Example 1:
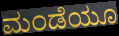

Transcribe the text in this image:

ಮಂಡೆಯೂ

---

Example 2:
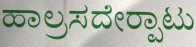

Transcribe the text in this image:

ಹಾಲ್ರಸದೇರ‍್ಪಾಟು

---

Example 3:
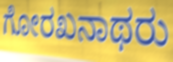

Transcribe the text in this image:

ಗೋರಖನಾಥರು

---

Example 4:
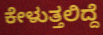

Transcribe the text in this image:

ಕೇಳುತ್ತಲಿದ್ದೆ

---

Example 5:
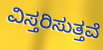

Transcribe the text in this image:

ವಿಸ್ತರಿಸುತ್ತವೆ